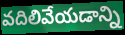
వదిలివేయడాన్ని